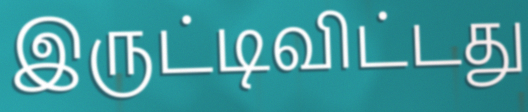
இருட்டிவிட்டது